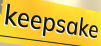
keepsake